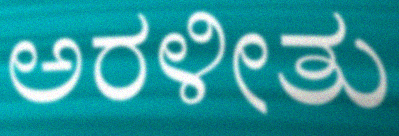
ಅರಳೀತು